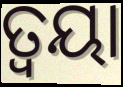
ତ୍ୱୟା